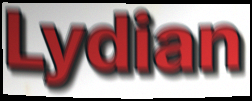
Lydian